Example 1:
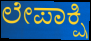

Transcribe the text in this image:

ಲೇಪಾಕ್ಷಿ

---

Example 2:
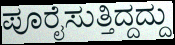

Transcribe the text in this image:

ಪೂರೈಸುತ್ತಿದ್ದದ್ದು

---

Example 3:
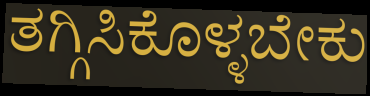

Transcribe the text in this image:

ತಗ್ಗಿಸಿಕೊಳ್ಳಬೇಕು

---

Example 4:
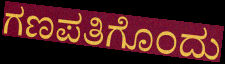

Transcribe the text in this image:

ಗಣಪತಿಗೊಂದು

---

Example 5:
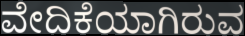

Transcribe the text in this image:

ವೇದಿಕೆಯಾಗಿರುವ